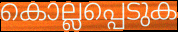
കൊല്ലപ്പെടുക